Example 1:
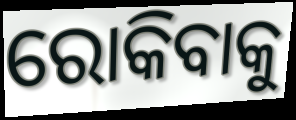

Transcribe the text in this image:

ରୋକିବାକୁ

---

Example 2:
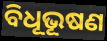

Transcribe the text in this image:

ବିଧୂଭୂଷଣ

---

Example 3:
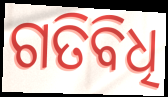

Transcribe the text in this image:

ଗତିବିଧି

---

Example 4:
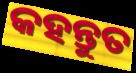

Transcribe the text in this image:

କହନ୍ତୁତ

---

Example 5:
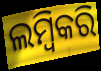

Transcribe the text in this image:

ଲମ୍ବିକରି